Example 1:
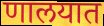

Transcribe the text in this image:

णालयात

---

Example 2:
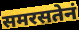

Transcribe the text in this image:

समरसतेनं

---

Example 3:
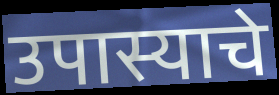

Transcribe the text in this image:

उपास्याचे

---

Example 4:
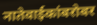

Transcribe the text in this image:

नातेवाईकांबरोबर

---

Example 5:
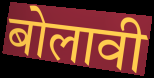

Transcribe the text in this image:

बोलावी